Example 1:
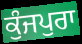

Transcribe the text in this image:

ਕੁੰਜਪੁਰਾ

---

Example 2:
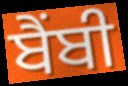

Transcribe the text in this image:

ਬੈਂਬੀ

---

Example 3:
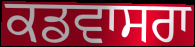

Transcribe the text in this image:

ਕਡਵਾਸਰਾ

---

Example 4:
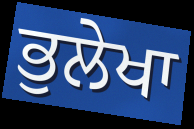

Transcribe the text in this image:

ਭੁਲੇਖਾ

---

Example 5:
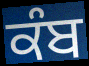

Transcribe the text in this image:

ਕੰਬ